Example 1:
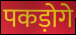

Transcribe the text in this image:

पकड़ोगे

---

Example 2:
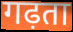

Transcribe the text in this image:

गढ़ता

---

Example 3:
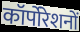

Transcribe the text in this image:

कॉर्पोरेशनों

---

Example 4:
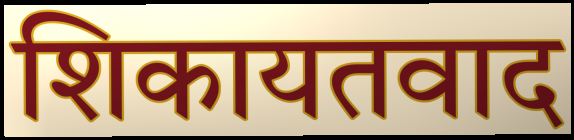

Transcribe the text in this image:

शिकायतवाद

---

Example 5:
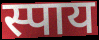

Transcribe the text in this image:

स्पाय